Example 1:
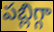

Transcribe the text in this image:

పబ్లిగ్గా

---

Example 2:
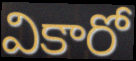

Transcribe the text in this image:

వికారో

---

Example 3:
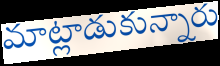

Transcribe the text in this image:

మాట్లాడుకున్నారు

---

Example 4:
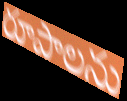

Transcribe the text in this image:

రూపాలను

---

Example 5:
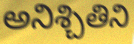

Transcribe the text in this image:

అనిశ్చితిని